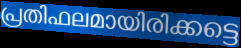
പ്രതിഫലമായിരിക്കട്ടെ